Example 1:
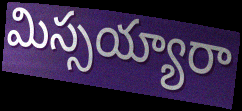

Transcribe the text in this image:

మిస్సయ్యారా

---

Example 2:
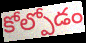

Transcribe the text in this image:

కోల్పోడం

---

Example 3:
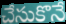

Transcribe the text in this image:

చేసుకొనే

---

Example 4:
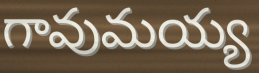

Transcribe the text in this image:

గావుమయ్య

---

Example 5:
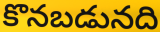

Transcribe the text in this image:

కొనబడునది